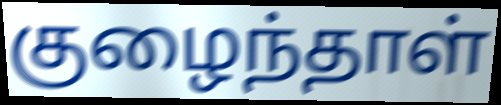
குழைந்தாள்